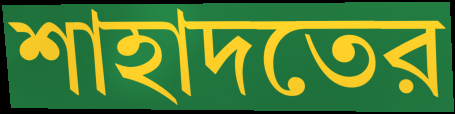
শাহাদতের